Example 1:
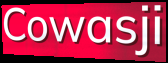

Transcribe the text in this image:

Cowasji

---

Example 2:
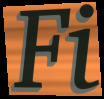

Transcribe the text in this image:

Fi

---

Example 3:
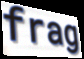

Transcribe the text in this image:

frag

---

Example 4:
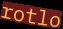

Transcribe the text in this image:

rotlo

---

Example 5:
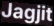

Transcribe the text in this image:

Jagjit